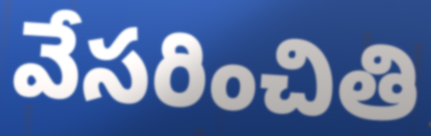
వేసరించితి